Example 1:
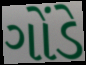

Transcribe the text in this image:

ગોંડે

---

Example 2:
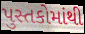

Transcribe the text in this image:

પુસ્તકોમાંથી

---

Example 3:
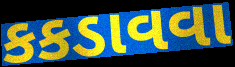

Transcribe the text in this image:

કકડાવવા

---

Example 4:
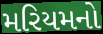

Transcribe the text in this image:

મરિયમનો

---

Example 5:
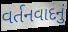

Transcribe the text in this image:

વર્તનવાદનું